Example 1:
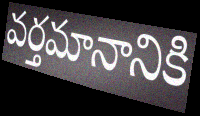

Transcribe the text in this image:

వర్తమానానికి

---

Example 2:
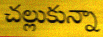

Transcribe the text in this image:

చల్లుకున్నా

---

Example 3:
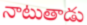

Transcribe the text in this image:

నాటుతాడు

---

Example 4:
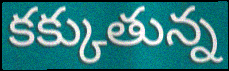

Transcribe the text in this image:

కక్కుతున్న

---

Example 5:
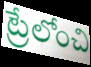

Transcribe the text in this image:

ట్రేలోంచి